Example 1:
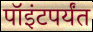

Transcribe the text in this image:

पॉइंटपर्यंत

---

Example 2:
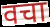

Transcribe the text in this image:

वचा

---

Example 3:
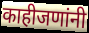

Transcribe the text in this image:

काहीजणांनी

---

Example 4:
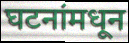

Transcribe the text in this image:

घटनांमधून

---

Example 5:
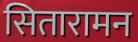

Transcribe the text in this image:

सितारामन